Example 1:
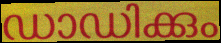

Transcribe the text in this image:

ഡാഡിക്കും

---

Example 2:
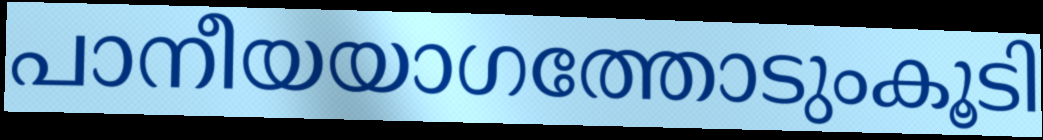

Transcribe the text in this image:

പാനീയയാഗത്തോടുംകൂടി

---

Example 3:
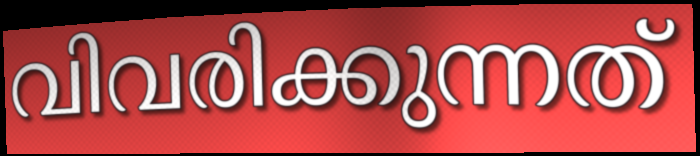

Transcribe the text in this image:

വിവരിക്കുന്നത്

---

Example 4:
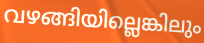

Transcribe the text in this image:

വഴങ്ങിയില്ലെങ്കിലും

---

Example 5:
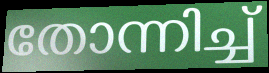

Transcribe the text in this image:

തോന്നിച്ച്